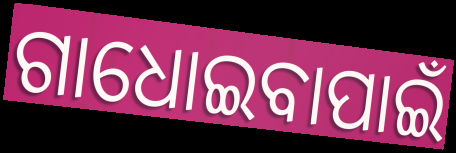
ଗାଧୋଇବାପାଇଁ